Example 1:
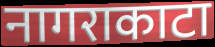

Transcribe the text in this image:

नागराकाटा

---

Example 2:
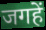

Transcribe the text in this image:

जगहें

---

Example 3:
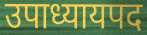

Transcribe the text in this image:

उपाध्यायपद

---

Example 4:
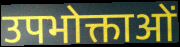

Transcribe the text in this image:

उपभोक्ताओं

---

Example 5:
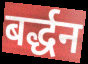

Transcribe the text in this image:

बर्द्धन